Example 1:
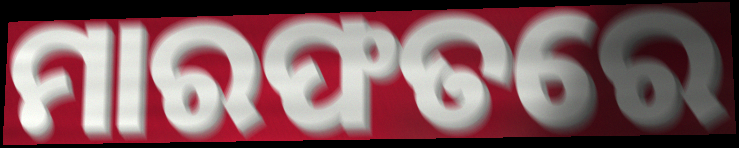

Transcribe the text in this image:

ମାରଫତରେ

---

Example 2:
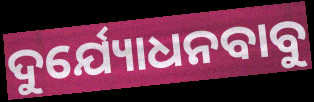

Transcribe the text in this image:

ଦୁର୍ଯ୍ୟୋଧନବାବୁ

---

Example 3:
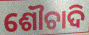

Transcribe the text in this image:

ଶୌଚାଦି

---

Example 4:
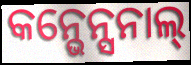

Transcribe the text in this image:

କନ୍ଭେନ୍ସନାଲ୍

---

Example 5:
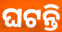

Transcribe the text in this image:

ଘଟନ୍ତି